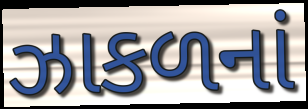
ઝાકળનાં